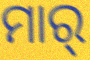
ମାର୍